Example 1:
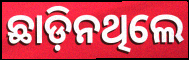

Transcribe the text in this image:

ଛାଡ଼ିନଥିଲେ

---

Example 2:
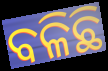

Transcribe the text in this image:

ବଳିଛି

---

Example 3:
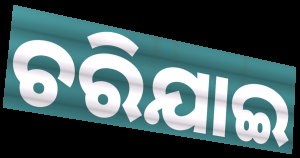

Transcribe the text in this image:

ଚରିଯାଇ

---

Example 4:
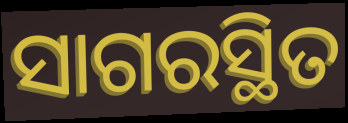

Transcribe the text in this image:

ସାଗରସ୍ଥିତ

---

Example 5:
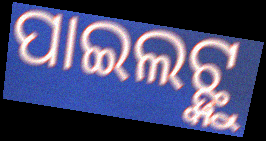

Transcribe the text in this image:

ପାଇଲଟ୍ଙ୍କୁ